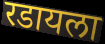
रडायला